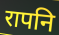
रापनि